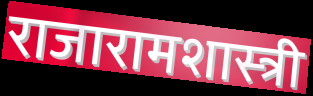
राजारामशास्त्री